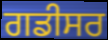
ਗਡੀਸਰ